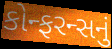
કોન્ફરન્સનું